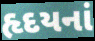
હૃદયનાં